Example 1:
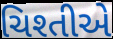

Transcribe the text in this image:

ચિશ્તીએ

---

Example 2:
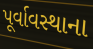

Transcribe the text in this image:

પૂર્વાવસ્થાના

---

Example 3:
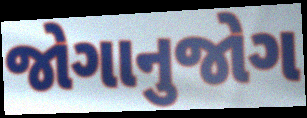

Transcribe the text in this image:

જોગાનુજોગ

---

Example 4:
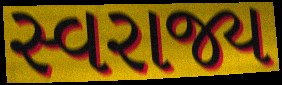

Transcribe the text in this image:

સ્વરાજ્ય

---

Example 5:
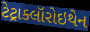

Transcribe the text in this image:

ટેટ્રાક્લૉરોઇથેન